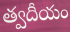
త్వదీయం